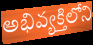
అభివ్యక్తిలోని